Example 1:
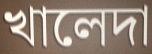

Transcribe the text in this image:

খালেদা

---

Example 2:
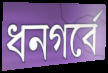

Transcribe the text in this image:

ধনগর্বে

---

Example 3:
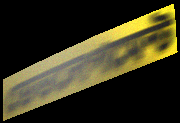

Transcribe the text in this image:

ডেভলেপমেন্ট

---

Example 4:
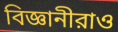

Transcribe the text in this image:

বিজ্ঞানীরাও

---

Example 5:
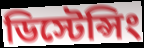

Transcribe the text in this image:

ডিস্টেন্সিং